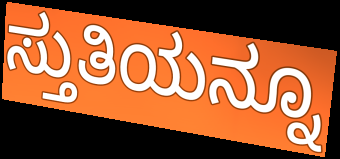
ಸ್ತುತಿಯನ್ನೂ